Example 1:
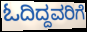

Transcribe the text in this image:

ಓದಿದ್ದವರಿಗೆ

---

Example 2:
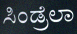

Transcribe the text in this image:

ಸಿಂಡ್ರೆಲಾ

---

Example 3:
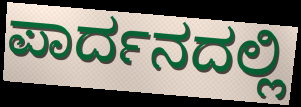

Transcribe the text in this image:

ಪಾರ್ದನದಲ್ಲಿ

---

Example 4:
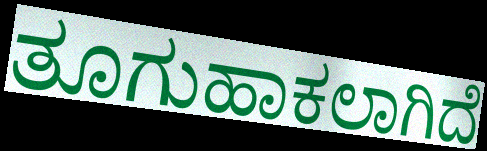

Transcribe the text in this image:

ತೂಗುಹಾಕಲಾಗಿದೆ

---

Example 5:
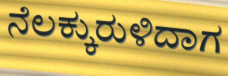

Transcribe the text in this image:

ನೆಲಕ್ಕುರುಳಿದಾಗ